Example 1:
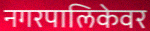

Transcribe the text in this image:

नगरपालिकेवर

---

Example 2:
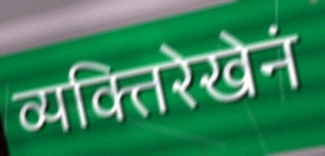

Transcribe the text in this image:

व्यक्तिरेखेनं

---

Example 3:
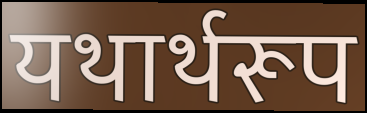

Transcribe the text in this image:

यथार्थरूप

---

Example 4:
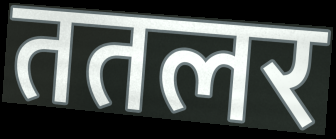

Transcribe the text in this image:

ततलर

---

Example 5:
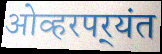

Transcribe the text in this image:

ओव्हरपर्यंत